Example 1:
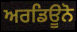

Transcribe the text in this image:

ਅਰਡਿਊਨੋ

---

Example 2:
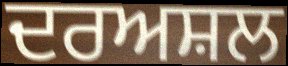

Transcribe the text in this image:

ਦਰਅਸ਼ਲ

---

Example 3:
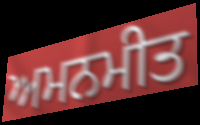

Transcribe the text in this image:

ਅਮਨਮੀਤ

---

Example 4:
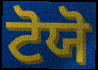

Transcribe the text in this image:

ਟੋਯੋ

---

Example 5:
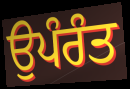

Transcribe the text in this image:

ਉਪੰਰੰਤ